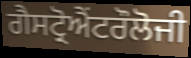
ਗੈਸਟ੍ਰੋਐਂਟਰੌਲੋਜੀ